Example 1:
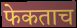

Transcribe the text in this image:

फेकताच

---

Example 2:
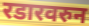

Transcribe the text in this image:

रडारवरुन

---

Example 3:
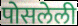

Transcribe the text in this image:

पोसलेली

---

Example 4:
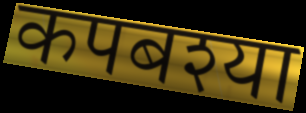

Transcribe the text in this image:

कपबश्या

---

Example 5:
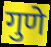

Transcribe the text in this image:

गुणे